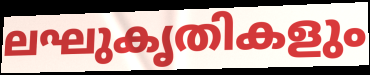
ലഘുകൃതികളും